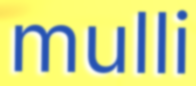
mulli